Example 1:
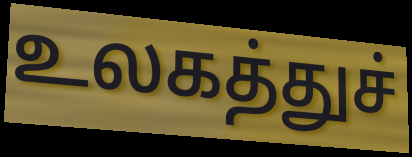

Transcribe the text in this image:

உலகத்துச்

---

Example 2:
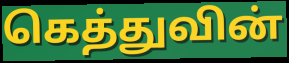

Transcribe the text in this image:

கெத்துவின்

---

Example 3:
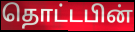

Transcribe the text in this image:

தொட்டபின்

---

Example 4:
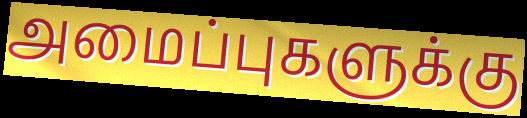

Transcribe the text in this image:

அமைப்புகளுக்கு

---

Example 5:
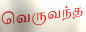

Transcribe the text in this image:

வெருவந்த